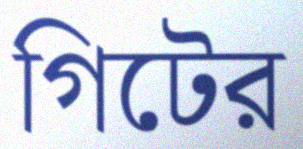
গিটের